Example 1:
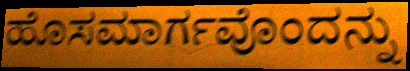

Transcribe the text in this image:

ಹೊಸಮಾರ್ಗವೊಂದನ್ನು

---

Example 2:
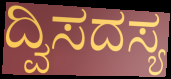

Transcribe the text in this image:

ದ್ವಿಸದಸ್ಯ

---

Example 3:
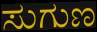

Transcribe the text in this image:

ಸುಗುಣ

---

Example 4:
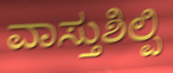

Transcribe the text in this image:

ವಾಸ್ತುಶಿಲ್ಪಿ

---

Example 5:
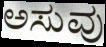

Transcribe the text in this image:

ಅಸುವು